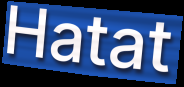
Hatat